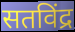
सतविंद्र